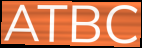
ATBC